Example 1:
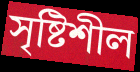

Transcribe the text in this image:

সৃষ্টিশীল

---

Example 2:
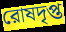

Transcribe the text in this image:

রোষদৃপ্ত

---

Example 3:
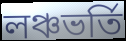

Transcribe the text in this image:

লঞ্চভর্তি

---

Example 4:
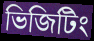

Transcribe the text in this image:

ভিজিটিং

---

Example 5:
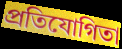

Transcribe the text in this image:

প্রতিযোগিতা